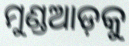
ମୁଣ୍ଡଆଡ଼କୁ